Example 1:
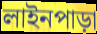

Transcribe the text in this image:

লাইনপাড়া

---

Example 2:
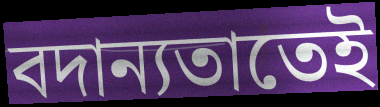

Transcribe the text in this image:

বদান্যতাতেই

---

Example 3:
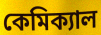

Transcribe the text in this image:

কেমিক্যাল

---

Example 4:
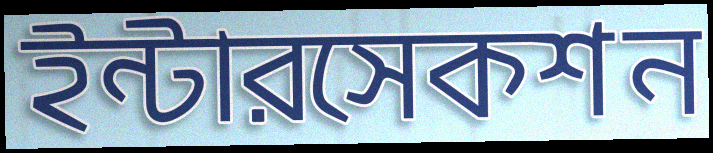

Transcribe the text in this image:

ইন্টারসেকশন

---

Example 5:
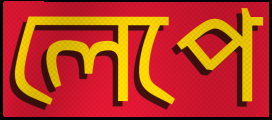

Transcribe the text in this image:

লেপে